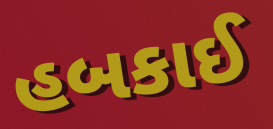
હબકાઈ